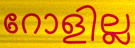
റോളില്ല